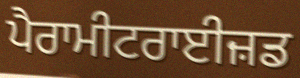
ਪੈਰਾਮੀਟਰਾਈਜ਼ਡ